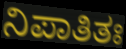
ನಿಪಾತಿತಃ